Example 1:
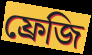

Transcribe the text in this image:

ফ্রেজি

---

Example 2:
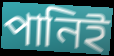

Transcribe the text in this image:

পানিই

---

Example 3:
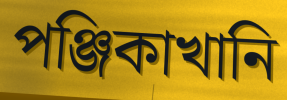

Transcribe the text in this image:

পঞ্জিকাখানি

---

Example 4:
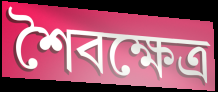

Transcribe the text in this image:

শৈবক্ষেত্র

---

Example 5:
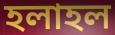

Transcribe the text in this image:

হলাহল